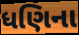
ધણિના